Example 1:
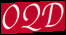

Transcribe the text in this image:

OQD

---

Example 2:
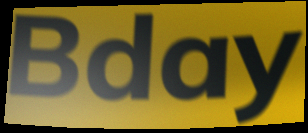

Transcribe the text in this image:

Bday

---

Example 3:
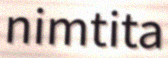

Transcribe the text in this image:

nimtita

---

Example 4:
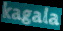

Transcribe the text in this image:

kagala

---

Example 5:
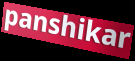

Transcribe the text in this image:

panshikar